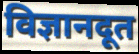
विज्ञानदूत